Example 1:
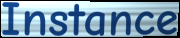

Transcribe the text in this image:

Instance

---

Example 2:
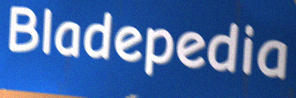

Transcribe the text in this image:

Bladepedia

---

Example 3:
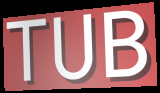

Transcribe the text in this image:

TUB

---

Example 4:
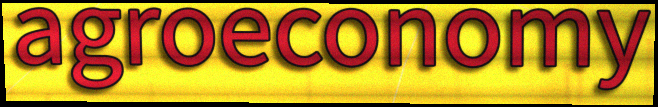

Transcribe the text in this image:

agroeconomy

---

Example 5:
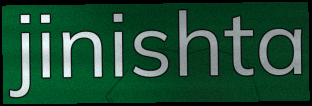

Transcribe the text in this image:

jinishta